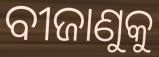
ବୀଜାଣୁକୁ